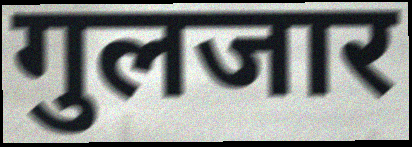
गुलजार